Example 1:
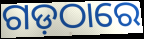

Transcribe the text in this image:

ଗଡ଼ଠାରେ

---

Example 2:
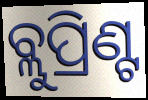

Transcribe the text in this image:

ବ୍ଲୁପ୍ରିଣ୍ଟ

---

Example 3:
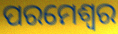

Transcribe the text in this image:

ପରମେଶ୍ୱର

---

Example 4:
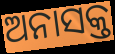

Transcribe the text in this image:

ଅନାସକ୍ତ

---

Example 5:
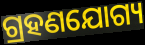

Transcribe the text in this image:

ଗ୍ରହଣଯୋଗ୍ୟ